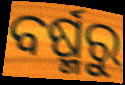
ବର୍ଷ୍ମରୁ